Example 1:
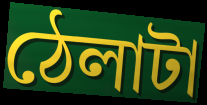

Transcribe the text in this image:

ঠেলাটা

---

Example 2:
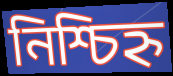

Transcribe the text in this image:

নিশ্চিহ্ন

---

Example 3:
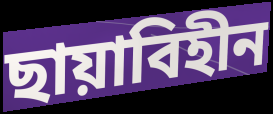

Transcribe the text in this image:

ছায়াবিহীন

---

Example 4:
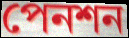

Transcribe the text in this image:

পেনশন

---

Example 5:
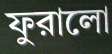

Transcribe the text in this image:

ফুরালো